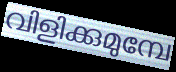
വിളിക്കുമുമ്പേ